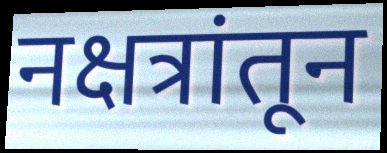
नक्षत्रांतून